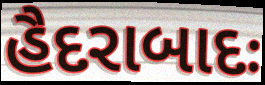
હૈદરાબાદઃ